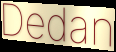
Dedan